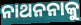
ନାଥନନାକୁ